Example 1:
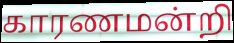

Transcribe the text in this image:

காரணமன்றி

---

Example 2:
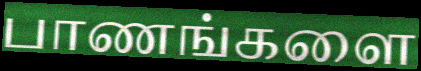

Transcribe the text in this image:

பாணங்களை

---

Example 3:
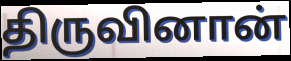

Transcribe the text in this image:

திருவினான்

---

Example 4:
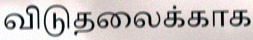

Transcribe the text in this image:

விடுதலைக்காக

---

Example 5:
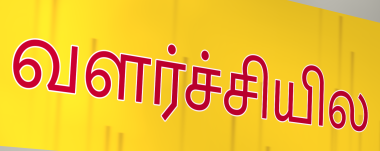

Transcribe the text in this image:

வளர்ச்சியில